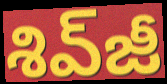
శివ్‌జీ